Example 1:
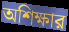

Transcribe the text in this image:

অশিক্ষার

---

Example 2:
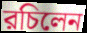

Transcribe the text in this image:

রচিলেন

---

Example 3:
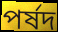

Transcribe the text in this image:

পর্ষদ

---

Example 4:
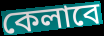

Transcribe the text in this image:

কেলাবে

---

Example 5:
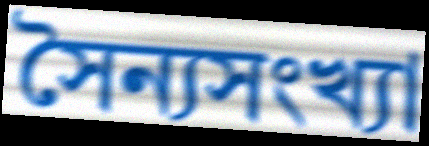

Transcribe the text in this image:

সৈন্যসংখ্যা